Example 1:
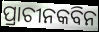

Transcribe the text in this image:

ପ୍ରାଚୀନକବିନ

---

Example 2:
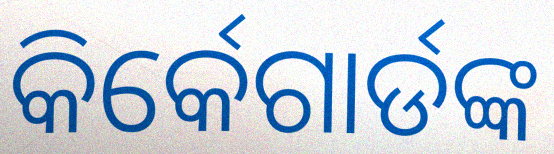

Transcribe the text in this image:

କିର୍କେଗାର୍ଡଙ୍କ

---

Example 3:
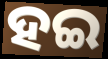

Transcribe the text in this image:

ହଇ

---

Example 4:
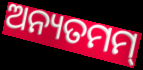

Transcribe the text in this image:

ଅନ୍ୟତମମ୍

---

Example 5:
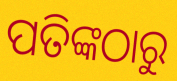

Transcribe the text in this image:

ପତିଙ୍କଠାରୁ